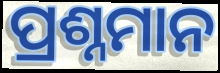
ପ୍ରଶ୍ନମାନ